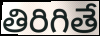
తిరిగితే